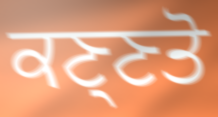
ਕਣ੍ਣਤੋ